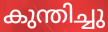
കുന്തിച്ചു